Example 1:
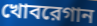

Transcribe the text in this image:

খোবরেগান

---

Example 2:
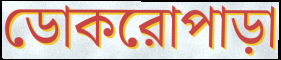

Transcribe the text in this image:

ডোকরোপাড়া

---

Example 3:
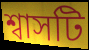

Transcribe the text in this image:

শ্বাসটি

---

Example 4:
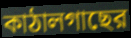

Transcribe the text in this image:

কাঠালগাছের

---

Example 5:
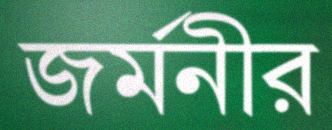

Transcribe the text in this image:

জর্মনীর